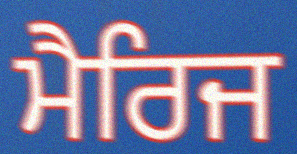
ਮੈਰਿਜ